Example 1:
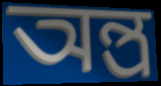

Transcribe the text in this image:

অন্ত্র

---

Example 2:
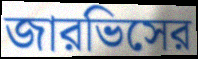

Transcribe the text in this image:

জারভিসের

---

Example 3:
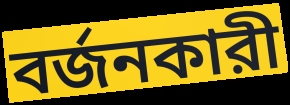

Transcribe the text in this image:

বর্জনকারী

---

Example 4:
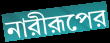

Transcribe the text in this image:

নারীরূপের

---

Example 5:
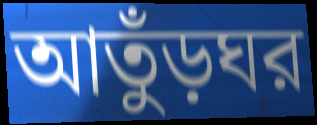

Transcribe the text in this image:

আতুঁড়ঘর